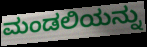
ಮಂಡಲಿಯನ್ನು